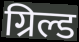
ग्रिल्ड